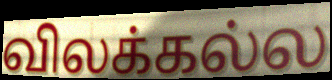
விலக்கல்ல